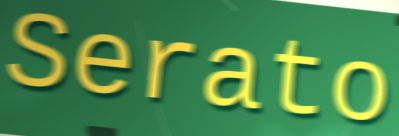
Serato